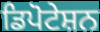
ਡਿਪੋਟੇਸ਼ਨ